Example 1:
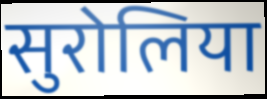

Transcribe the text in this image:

सुरोलिया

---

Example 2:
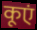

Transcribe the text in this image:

कूएं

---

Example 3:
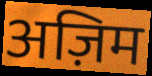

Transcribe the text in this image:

अज़िम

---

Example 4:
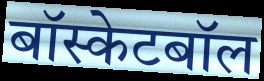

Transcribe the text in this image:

बॉस्केटबॉल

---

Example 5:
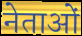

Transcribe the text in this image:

नेताओं